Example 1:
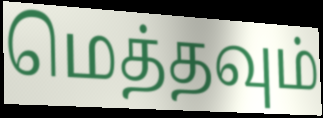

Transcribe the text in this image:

மெத்தவும்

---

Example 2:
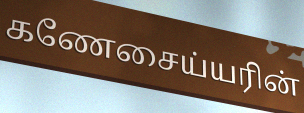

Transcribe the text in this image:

கணேசைய்யரின்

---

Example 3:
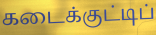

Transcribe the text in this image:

கடைக்குட்டிப்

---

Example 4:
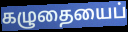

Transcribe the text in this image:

கழுதையைப்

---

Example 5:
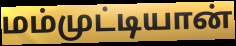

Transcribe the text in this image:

மம்முட்டியான்